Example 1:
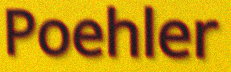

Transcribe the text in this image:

Poehler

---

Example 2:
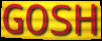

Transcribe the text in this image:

GOSH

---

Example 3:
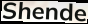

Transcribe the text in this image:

Shende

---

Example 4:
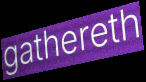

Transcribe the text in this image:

gathereth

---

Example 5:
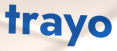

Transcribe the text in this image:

trayo